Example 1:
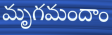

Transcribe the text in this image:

మృగమందాం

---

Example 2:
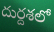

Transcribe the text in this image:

దుర్దశలో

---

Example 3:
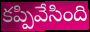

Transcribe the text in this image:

కప్పివేసింది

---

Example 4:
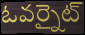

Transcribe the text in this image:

ఓవర్నైట్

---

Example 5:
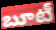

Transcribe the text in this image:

బూటీ